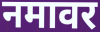
नमावर